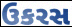
ઉકરસ